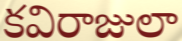
కవిరాజులా